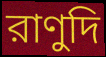
রাণুদি